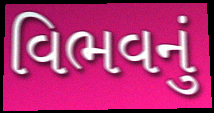
વિભવનું